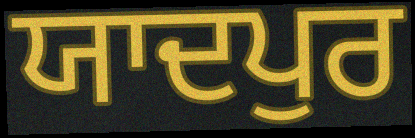
ਯਾਦਪੁਰ